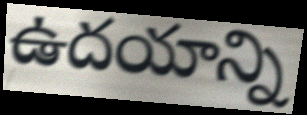
ఉదయాన్ని